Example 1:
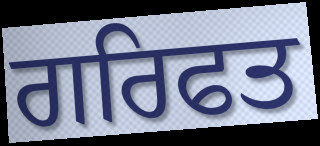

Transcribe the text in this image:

ਗਰਿਫਤ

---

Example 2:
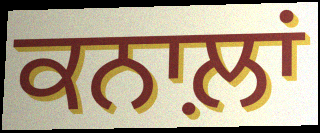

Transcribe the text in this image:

ਕਨਾਲ਼ਾਂ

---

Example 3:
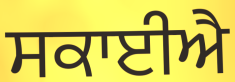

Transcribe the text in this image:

ਸਕਾਈਐ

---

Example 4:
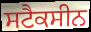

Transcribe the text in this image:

ਸਟੈਕਸੀਨ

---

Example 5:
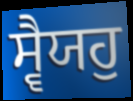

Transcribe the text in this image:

ਸ੍ਵੈਯਹੁ